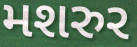
મશરુર